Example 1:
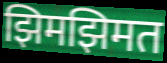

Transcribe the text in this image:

झिमझिमत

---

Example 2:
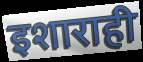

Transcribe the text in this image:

इशाराही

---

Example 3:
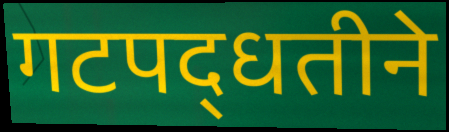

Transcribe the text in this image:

गटपद्धतीने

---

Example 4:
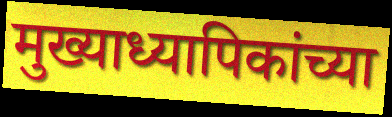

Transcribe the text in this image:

मुख्याध्यापिकांच्या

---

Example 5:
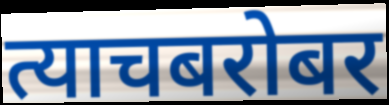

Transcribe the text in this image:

त्याचबरोबर